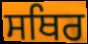
ਸਥਿਰ